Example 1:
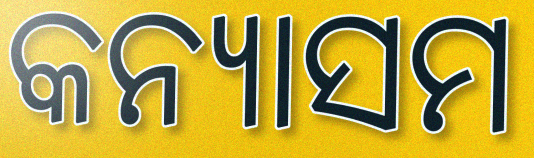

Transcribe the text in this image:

କନ୍ୟାସମ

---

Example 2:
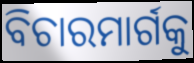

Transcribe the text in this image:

ବିଚାରମାର୍ଗକୁ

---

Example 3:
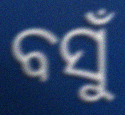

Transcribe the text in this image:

ବସୁଁ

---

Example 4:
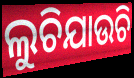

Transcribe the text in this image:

ଲୁଚିଯାଉଚି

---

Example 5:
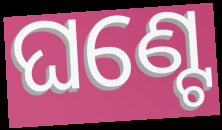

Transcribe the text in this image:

ଘଣ୍ଟେ